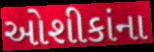
ઓશીકાંના